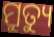
ମ୍ରୁତ୍ୟୁ